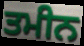
ਤਮੀਨ